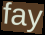
fay